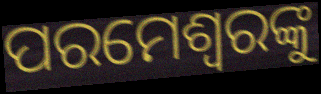
ପରମେଶ୍ୱରଙ୍କୁ